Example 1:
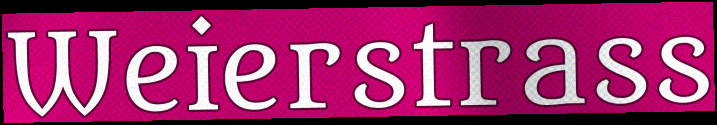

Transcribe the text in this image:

Weierstrass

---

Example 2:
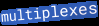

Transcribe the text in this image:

multiplexes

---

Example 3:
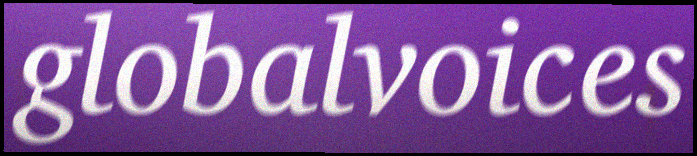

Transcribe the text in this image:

globalvoices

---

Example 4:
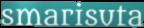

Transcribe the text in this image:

smarisuta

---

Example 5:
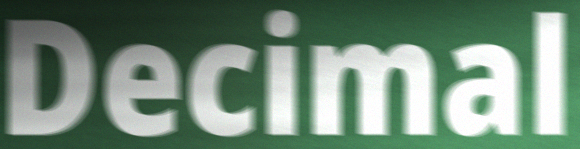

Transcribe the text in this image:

Decimal